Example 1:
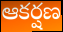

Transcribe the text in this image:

ఆకర్షణ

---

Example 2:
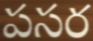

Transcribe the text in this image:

పసర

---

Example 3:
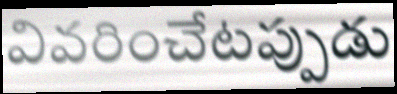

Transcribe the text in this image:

వివరించేటప్పుడు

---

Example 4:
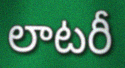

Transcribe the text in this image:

లాటరీ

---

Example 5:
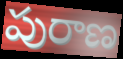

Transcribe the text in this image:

పురాణ